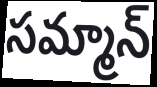
సమ్మాన్